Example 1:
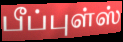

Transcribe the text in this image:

பீப்புள்ஸ்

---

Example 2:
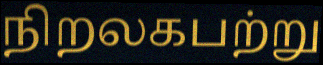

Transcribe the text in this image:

நிறலகபற்று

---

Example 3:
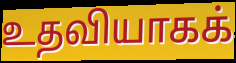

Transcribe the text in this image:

உதவியாகக்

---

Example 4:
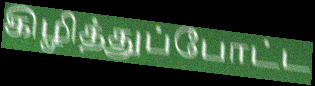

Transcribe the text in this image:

கிழித்துப்போட்ட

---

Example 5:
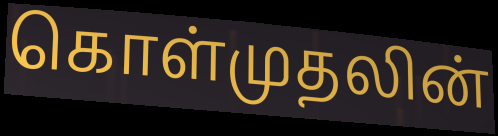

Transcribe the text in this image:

கொள்முதலின்